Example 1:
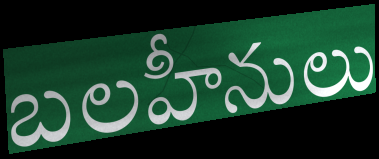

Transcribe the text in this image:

బలహీనులు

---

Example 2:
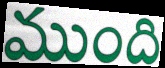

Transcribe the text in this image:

ముంది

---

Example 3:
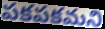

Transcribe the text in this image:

పకపకమని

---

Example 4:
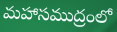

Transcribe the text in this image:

మహాసముద్రంలో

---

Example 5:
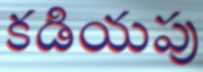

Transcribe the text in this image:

కడియపు